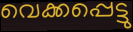
വെക്കപ്പെട്ടു